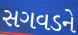
સગવડને